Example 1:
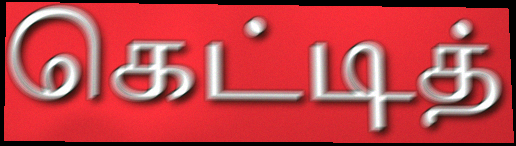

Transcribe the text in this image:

கெட்டித்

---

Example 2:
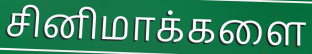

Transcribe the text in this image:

சினிமாக்களை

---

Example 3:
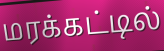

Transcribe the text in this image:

மரக்கட்டில்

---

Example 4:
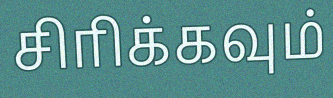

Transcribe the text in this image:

சிரிக்கவும்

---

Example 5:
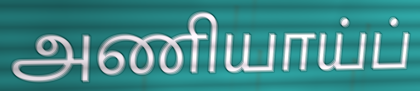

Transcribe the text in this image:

அணியாய்ப்